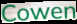
Cowen